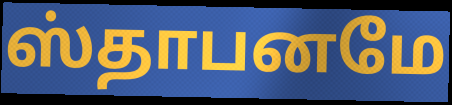
ஸ்தாபனமே